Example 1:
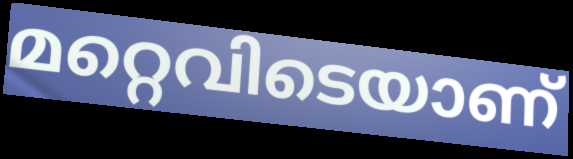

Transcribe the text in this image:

മറ്റെവിടെയാണ്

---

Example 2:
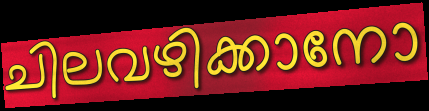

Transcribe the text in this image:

ചിലവഴിക്കാനോ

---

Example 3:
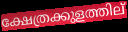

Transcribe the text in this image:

ക്ഷേത്രക്കുളത്തില്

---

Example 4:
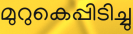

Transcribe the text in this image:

മുറുകെപ്പിടിച്ചു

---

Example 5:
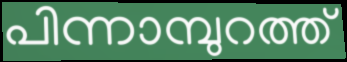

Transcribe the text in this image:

പിന്നാമ്പുറത്ത്